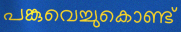
പങ്കുവെച്ചുകൊണ്ട്